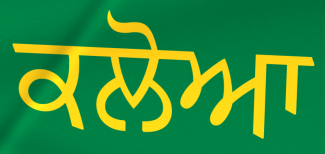
ਕਲੋਆ